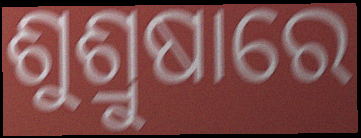
ଶୁଶ୍ରୁଷାରେ